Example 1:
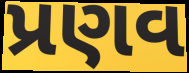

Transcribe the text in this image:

પ્રણવ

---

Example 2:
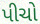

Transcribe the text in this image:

પીચો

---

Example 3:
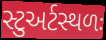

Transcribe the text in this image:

સ્ટુઅર્ટસ્થળઃ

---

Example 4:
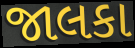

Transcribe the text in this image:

જાલકા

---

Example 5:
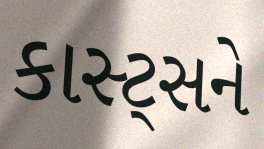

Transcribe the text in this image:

કાસ્ટ્સને